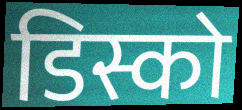
डिस्को